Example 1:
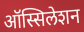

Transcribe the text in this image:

ऑस्सिलेशन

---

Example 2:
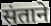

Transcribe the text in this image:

संताने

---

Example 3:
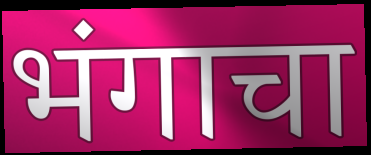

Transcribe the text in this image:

भंगाचा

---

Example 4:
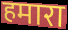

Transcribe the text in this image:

हमारा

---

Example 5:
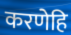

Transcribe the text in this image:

करणेहि